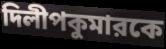
দিলীপকুমারকে